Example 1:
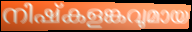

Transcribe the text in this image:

നിഷ്‌കളങ്കവുമായ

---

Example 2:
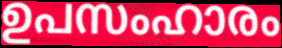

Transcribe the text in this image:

ഉപസംഹാരം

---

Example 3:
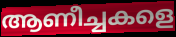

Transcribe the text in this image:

ആണീച്ചകളെ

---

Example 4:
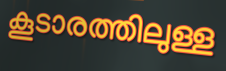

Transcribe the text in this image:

കൂടാരത്തിലുള്ള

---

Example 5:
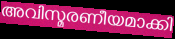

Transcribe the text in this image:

അവിസ്മരണീയമാക്കി